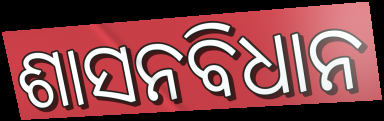
ଶାସନବିଧାନ